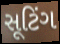
સૂટિંગ